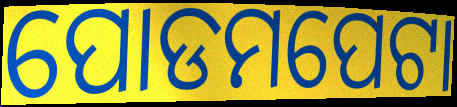
ପୋଡମପେଟା